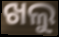
ଖଲୁ